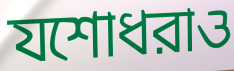
যশোধরাও